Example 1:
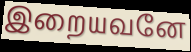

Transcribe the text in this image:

இறையவனே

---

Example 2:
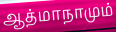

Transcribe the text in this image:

ஆத்மாநாமும்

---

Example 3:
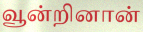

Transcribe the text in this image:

வூன்றினான்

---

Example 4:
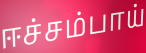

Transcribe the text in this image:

ஈச்சம்பாய்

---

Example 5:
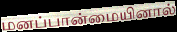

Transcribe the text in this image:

மனப்பான்மையினால்